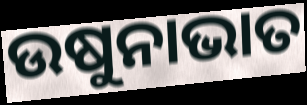
ଉଷୁନାଭାତ